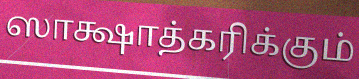
ஸாக்ஷாத்கரிக்கும்